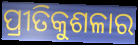
ପ୍ରୀତିକୁଶଳାର